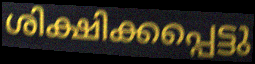
ശിക്ഷിക്കപ്പെട്ടു